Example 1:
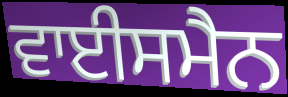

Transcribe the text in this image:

ਵਾਈਸਮੈਨ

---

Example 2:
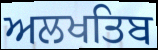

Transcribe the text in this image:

ਅਲਖਤਿਬ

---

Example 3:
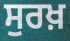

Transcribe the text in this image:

ਸੁਰਖ਼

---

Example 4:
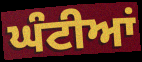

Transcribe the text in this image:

ਘੰਟੀਆਂ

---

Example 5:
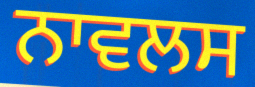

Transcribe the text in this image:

ਨਾਵਲਸ